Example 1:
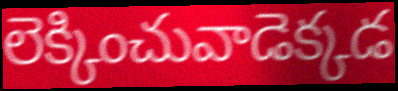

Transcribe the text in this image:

లెక్కించువాడెక్కడ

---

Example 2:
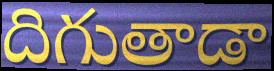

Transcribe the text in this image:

దిగుతాడా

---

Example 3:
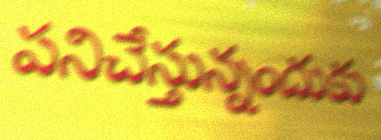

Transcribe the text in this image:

పనిచేస్తున్నందుకు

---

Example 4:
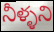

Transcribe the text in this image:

నీళ్ళని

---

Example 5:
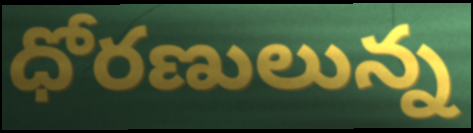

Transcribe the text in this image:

ధోరణులున్న